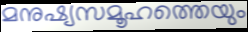
മനുഷ്യസമൂഹത്തെയും